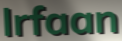
Irfaan